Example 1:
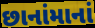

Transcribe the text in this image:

છાનાંમાનાં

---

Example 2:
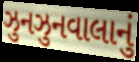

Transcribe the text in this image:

ઝુનઝુનવાલાનું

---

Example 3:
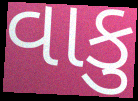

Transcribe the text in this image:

વાકુ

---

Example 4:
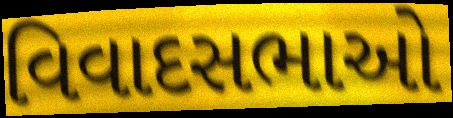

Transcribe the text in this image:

વિવાદસભાઓ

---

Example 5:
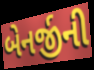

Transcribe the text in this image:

બેનર્જીની